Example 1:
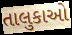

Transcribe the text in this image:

તાલુકાઓ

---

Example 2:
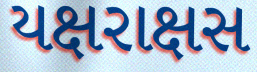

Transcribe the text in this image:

યક્ષરાક્ષસ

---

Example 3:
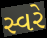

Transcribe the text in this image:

સ્વરે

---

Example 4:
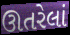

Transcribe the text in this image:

ઊતરેલાં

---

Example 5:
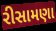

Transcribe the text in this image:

રીસામણા